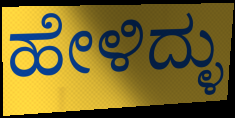
ಹೇಳಿದ್ಳು